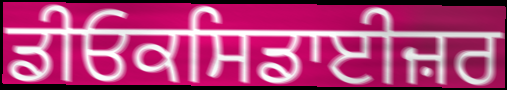
ਡੀਓਕਸਿਡਾਈਜ਼ਰ